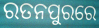
ରତନପୁରରେ